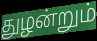
துழன்றும்